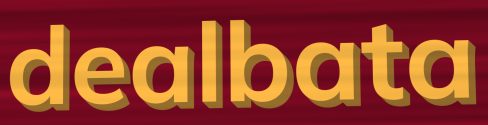
dealbata